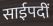
साईपदीं